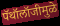
पॅथॉलॉजीमुळे